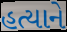
હત્યાને